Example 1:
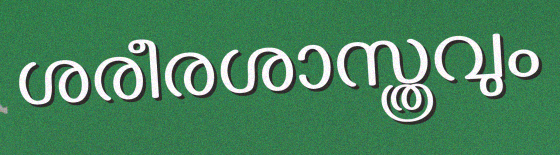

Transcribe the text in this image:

ശരീരശാസ്ത്രവും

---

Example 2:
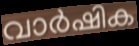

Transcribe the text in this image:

വാർഷിക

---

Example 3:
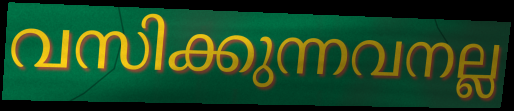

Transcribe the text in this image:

വസിക്കുന്നവനല്ല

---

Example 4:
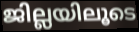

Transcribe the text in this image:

ജില്ലയിലൂടെ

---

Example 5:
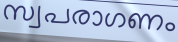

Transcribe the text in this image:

സ്വപരാഗണം